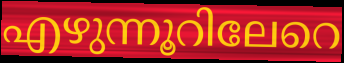
എഴുന്നൂറിലേറെ